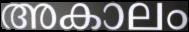
അകാലം